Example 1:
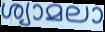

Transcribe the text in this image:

ശ്യാമലാ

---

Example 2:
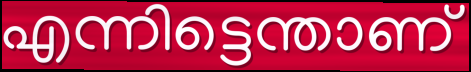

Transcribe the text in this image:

എന്നിട്ടെന്താണ്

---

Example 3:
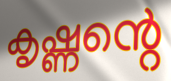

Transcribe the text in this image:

കൃഷ്ണന്റെ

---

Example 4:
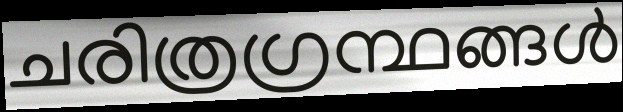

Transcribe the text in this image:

ചരിത്രഗ്രന്ഥങ്ങൾ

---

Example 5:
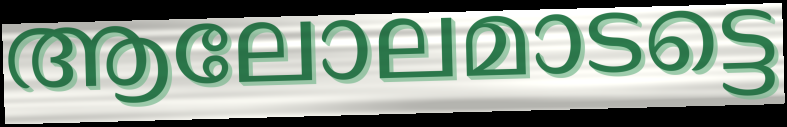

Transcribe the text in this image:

ആലോലമാടട്ടെ